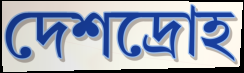
দেশদ্রোহ